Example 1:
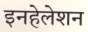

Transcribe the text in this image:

इनहेलेशन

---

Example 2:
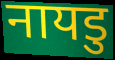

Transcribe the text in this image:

नायडु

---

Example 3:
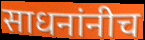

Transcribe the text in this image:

साधनांनीच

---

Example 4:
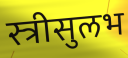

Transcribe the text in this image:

स्त्रीसुलभ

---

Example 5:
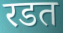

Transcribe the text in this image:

रडत